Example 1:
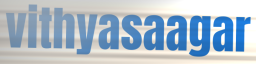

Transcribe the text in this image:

vithyasaagar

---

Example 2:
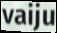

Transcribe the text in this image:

vaiju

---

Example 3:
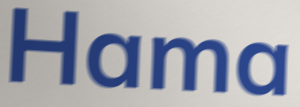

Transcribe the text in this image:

Hama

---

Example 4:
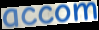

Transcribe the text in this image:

accom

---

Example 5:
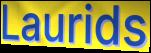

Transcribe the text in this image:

Laurids